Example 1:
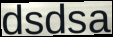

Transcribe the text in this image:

dsdsa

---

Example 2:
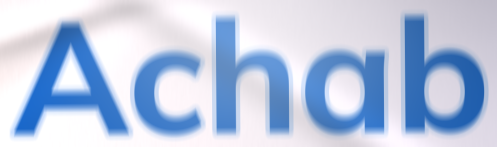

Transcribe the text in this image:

Achab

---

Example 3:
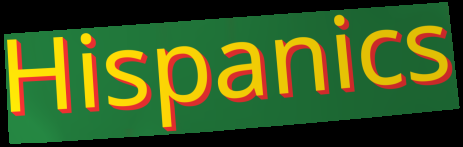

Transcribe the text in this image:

Hispanics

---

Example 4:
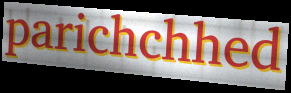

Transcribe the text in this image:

parichchhed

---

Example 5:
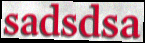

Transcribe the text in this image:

sadsdsa